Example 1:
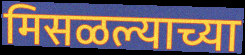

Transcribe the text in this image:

मिसळल्याच्या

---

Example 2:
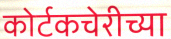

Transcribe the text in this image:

कोर्टकचेरीच्या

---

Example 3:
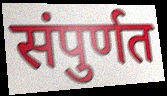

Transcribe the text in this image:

संपुर्णत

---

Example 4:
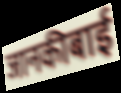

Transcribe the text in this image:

जानकीबाई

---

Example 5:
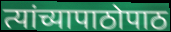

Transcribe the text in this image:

त्यांच्यापाठोपाठ